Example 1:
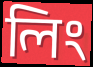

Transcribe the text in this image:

লিং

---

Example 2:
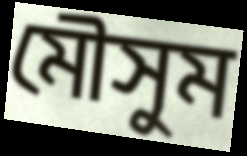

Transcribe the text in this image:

মৌসুম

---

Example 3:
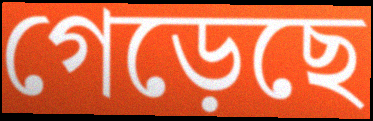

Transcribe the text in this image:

গেড়েছে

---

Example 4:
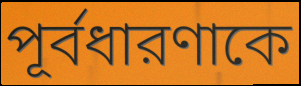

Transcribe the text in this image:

পূর্বধারণাকে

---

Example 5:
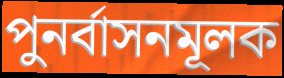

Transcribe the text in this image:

পুনর্বাসনমূলক